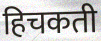
हिचकती